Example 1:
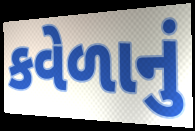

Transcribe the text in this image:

કવેળાનું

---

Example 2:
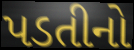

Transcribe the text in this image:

પડતીનો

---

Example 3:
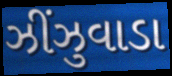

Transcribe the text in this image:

ઝીંઝુવાડા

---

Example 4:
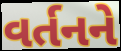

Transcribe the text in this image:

વર્તનને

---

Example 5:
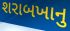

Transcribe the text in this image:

શરાબખાનુ